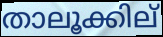
താലൂക്കില്